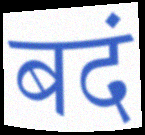
बदं